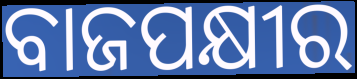
ବାଜପକ୍ଷୀର